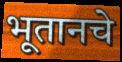
भूतानचे